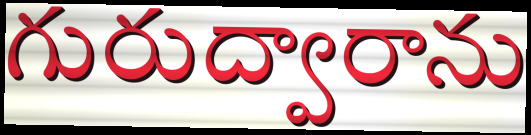
గురుద్వారాను